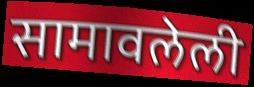
सामावलेली